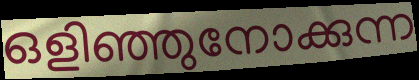
ഒളിഞ്ഞുനോക്കുന്ന